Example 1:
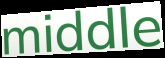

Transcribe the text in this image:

middle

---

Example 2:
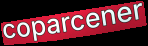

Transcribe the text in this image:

coparcener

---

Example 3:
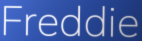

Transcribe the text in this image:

Freddie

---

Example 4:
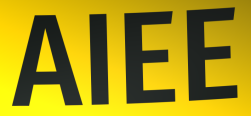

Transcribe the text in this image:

AIEE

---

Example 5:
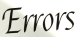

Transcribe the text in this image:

Errors